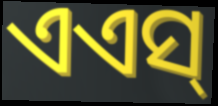
ଏଏସ୍